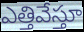
ఎత్తివేస్తూ